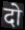
दो